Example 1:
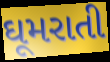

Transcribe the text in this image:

ઘૂમરાતી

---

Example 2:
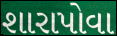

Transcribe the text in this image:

શારાપોવા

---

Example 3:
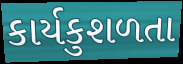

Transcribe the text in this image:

કાર્યકુશળતા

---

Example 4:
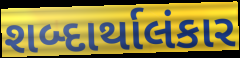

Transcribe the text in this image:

શબ્દાર્થાલંકાર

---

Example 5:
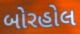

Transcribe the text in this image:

બોરહોલ